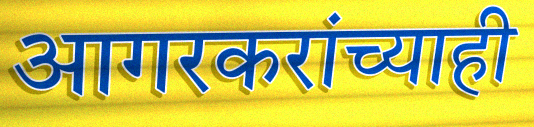
आगरकरांच्याही